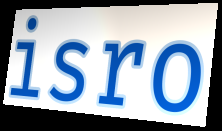
isro